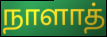
நாளாத்